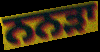
ਨਨੜਾ